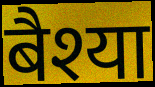
बैश्या